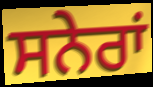
ਸਨੇਰਾਂ